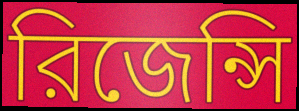
রিজেন্সি